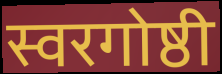
स्वरगोष्ठी